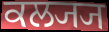
ਕਲ੍ਯ੍ਯ